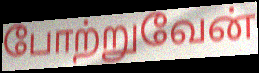
போற்றுவேன்